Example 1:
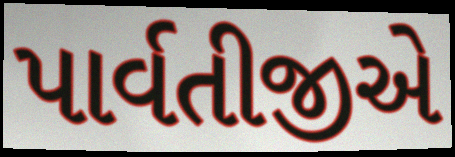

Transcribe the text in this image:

પાર્વતીજીએ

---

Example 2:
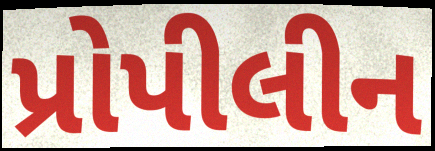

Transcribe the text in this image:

પ્રોપીલીન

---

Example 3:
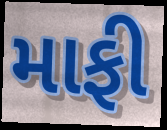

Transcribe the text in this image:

માફી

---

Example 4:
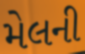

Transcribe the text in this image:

મેલની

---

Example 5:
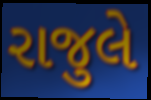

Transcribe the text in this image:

રાજુલે